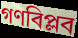
গণবিপ্লব